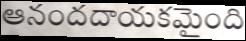
ఆనందదాయకమైంది